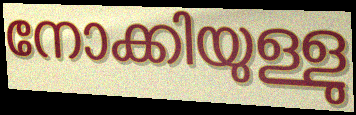
നോക്കിയുള്ളു